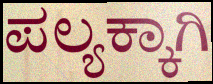
ಪಲ್ಯಕ್ಕಾಗಿ